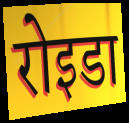
रोइडा